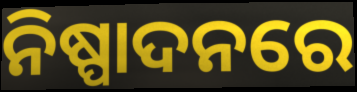
ନିଷ୍ପାଦନରେ